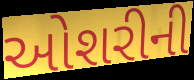
ઓશરીની